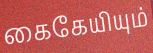
கைகேயியும்